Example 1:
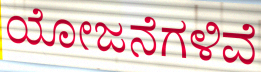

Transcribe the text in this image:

ಯೋಜನೆಗಳಿವೆ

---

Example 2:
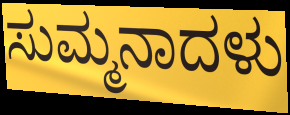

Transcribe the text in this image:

ಸುಮ್ಮನಾದಳು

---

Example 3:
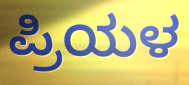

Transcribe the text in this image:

ಪ್ರಿಯಳ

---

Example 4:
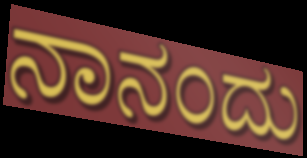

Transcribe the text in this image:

ನಾನಂದು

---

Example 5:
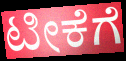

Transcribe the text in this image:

ಟೀಕೆಗೆ